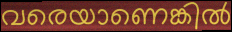
വരെയാണെങ്കിൽ